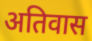
अतिवास